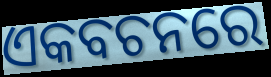
ଏକବଚନରେ